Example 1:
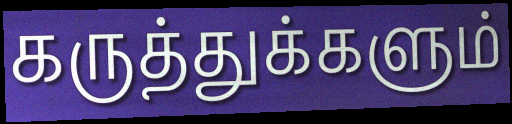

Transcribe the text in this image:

கருத்துக்களும்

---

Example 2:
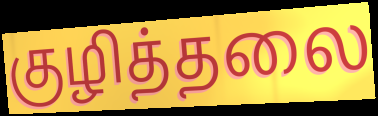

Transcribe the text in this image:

குழித்தலை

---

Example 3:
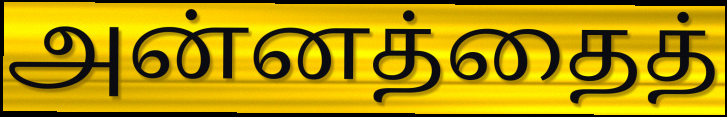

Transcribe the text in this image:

அன்னத்தைத்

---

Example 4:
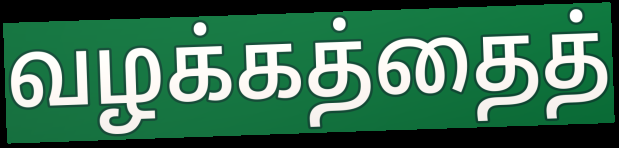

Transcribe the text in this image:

வழக்கத்தைத்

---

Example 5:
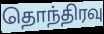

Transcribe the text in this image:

தொந்திரவு